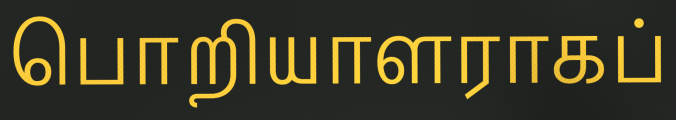
பொறியாளராகப்